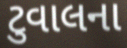
ટુવાલના